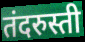
तंदरुस्ती